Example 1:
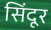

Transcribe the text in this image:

सिंदूर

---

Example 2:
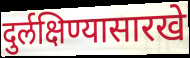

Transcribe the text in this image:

दुर्लक्षिण्यासारखे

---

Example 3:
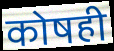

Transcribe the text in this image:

कोषही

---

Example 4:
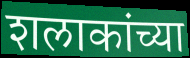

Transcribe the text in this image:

शलाकांच्या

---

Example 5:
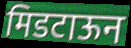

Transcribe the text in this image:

मिडटाऊन